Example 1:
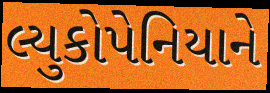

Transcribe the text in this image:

લ્યુકોપેનિયાને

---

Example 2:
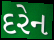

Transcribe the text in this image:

દરેન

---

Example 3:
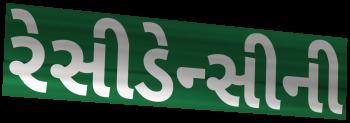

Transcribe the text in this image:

રેસીડેન્સીની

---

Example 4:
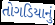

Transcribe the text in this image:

તોગડિયાનું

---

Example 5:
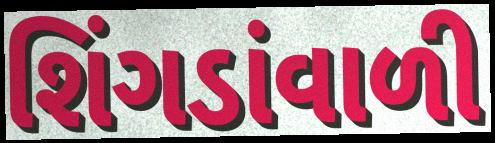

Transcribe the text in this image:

શિંગડાંવાળી